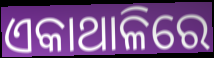
ଏକାଥାଳିରେ